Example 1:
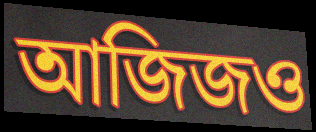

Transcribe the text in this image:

আজিজও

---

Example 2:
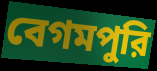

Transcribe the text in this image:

বেগমপুরি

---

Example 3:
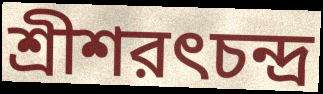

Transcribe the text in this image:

শ্রীশরৎচন্দ্র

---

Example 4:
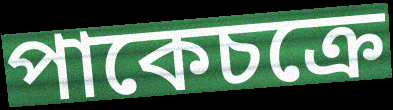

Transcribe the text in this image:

পাকেচক্রে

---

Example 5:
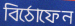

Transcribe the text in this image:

বিঠোফেন